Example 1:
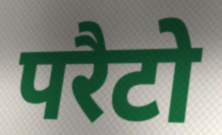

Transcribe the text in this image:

परैटो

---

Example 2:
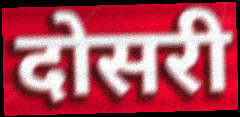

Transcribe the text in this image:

दोसरी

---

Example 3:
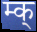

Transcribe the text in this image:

म्क्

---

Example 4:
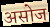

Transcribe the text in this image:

असोज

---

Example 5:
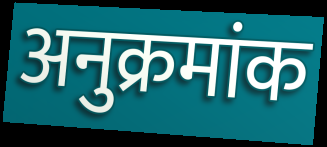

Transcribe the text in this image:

अनुक्रमांक